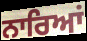
ਨਾਰਿਆਂ